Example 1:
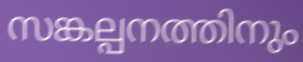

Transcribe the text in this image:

സങ്കല്പനത്തിനും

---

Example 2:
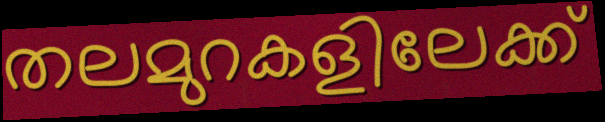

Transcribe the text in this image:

തലമുറകളിലേക്ക്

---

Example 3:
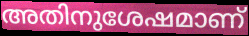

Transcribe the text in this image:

അതിനുശേഷമാണ്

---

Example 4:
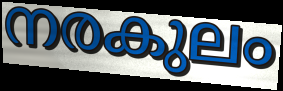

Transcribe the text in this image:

നരകുലം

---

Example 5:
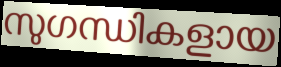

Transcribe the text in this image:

സുഗന്ധികളായ